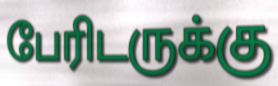
பேரிடருக்கு